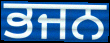
ਭਜਨ